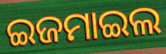
ଇଜମାଇଲ